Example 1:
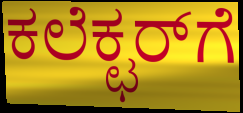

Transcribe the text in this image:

ಕಲೆಕ್ಟರ್‌ಗೆ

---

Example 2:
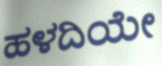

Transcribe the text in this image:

ಹಳದಿಯೇ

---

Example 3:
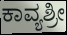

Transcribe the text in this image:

ಕಾವ್ಯಶ್ರೀ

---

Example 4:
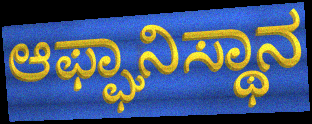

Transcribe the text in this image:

ಆಫ್ಘಾನಿಸ್ಥಾನ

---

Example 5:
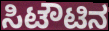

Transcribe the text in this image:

ಸಿಟೌಟಿನ